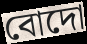
বোদো